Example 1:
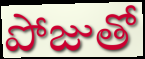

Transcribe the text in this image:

పోజుతో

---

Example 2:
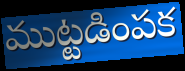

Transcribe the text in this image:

ముట్టడింపక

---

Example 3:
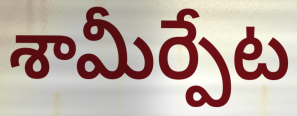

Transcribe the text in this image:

శామీర్పేట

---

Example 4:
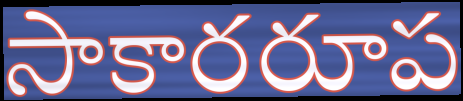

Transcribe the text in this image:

సాకారరూప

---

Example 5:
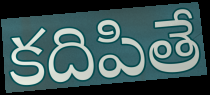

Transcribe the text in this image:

కదిపితే